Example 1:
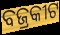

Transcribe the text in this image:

ବଜ୍ରକୀଟ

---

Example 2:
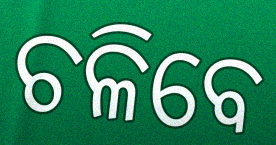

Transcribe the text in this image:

ଚଳିବେ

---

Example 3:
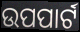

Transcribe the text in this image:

ଉପପାର୍ଟ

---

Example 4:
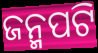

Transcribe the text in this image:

ଜନ୍ମପଟି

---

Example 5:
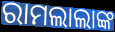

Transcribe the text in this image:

ରାମଲାଲାଙ୍କ